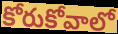
కోరుకోవాలో